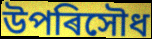
উপৰিসৌধ